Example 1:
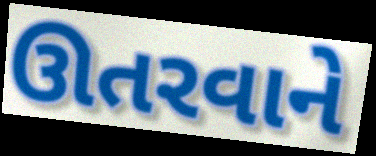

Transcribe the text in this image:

ઊતરવાને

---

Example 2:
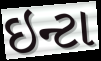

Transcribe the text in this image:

ઇન્ટા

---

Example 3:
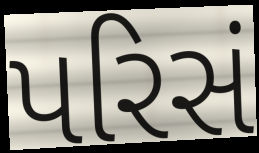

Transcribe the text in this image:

પરિસં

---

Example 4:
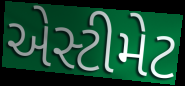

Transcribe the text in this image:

એસ્ટીમેટ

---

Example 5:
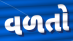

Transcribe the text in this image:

વળતો